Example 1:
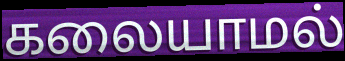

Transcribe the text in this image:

கலையாமல்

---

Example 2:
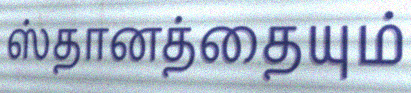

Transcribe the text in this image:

ஸ்தானத்தையும்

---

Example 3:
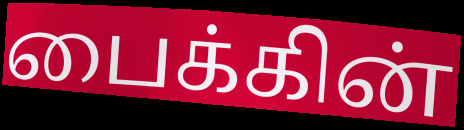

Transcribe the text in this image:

பைக்கின்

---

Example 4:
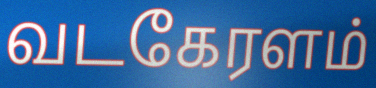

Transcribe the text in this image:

வடகேரளம்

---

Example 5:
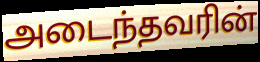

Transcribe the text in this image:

அடைந்தவரின்